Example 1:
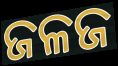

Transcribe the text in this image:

ଜଳଜ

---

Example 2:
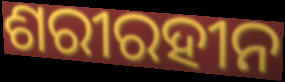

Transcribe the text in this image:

ଶରୀରହୀନ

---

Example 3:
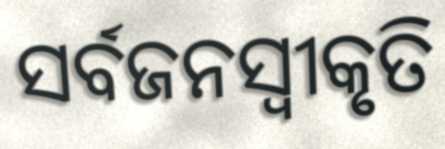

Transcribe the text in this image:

ସର୍ବଜନସ୍ୱୀକୃତି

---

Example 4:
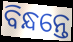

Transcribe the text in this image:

ବିନ୍ଧନ୍ତେ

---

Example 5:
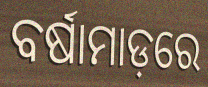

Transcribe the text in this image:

ବର୍ଷାମାଡ଼ରେ